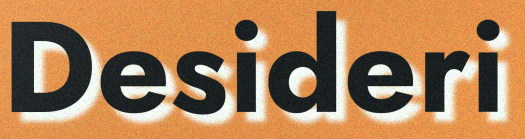
Desideri